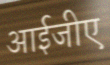
आईजीए